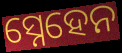
ସ୍ନେହେନ